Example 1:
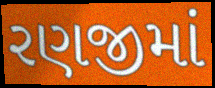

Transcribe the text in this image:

રણજીમાં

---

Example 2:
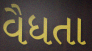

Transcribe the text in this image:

વૈધતા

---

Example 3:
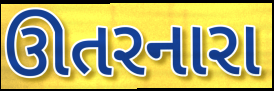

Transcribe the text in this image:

ઊતરનારા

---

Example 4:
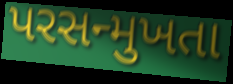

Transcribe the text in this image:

પરસન્મુખતા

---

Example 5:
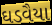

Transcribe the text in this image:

ઘડવૈયા